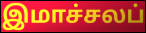
இமாச்சலப்